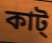
কাট্